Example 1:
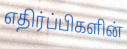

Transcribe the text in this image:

எதிர்ப்பிகளின்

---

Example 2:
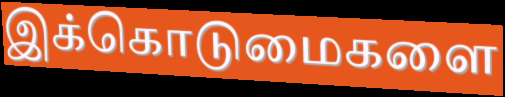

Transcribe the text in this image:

இக்கொடுமைகளை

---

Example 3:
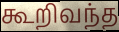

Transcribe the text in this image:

கூறிவந்த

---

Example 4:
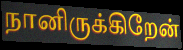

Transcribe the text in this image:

நானிருக்கிறேன்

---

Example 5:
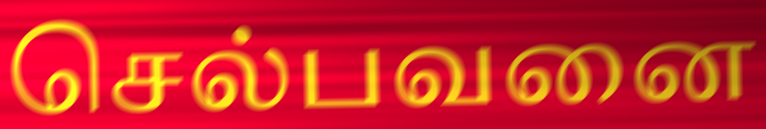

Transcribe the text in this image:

செல்பவனை